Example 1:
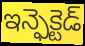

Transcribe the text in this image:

ఇన్ఫెక్టెడ్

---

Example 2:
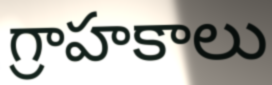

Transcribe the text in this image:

గ్రాహకాలు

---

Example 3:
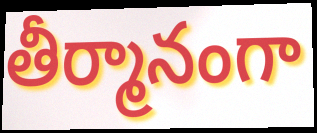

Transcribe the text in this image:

తీర్మానంగా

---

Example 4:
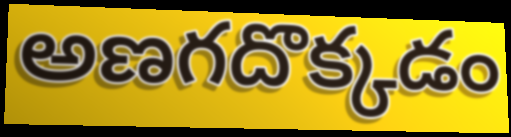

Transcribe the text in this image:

అణగదొక్కడం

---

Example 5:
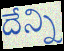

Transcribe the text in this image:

దేన్ని